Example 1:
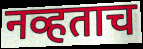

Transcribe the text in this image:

नव्हताच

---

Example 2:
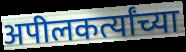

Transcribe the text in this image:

अपीलकर्त्यांच्या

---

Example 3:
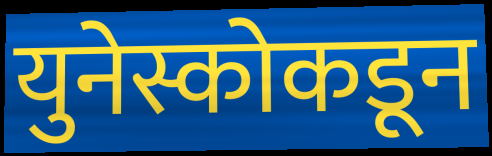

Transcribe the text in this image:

युनेस्कोकडून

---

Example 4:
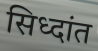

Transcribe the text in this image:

सिध्दांत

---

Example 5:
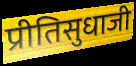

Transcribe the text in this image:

प्रीतिसुधाजी